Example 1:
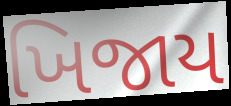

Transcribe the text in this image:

ખિજાય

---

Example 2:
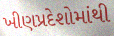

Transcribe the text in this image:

ખીણપ્રદેશોમાંથી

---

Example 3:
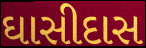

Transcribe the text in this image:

ઘાસીદાસ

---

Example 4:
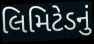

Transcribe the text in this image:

લિમિટેડનું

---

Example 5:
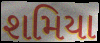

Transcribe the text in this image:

શમિયા